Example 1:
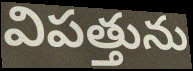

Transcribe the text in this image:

విపత్తును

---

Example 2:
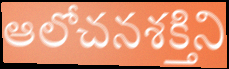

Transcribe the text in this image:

ఆలోచనశక్తిని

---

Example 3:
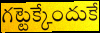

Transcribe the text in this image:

గట్టెక్కేందుకే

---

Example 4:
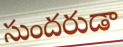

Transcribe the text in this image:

సుందరుడా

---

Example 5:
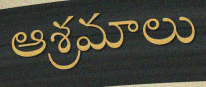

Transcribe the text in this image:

ఆశ్రమాలు